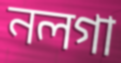
নলগা